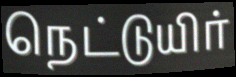
நெட்டுயிர்